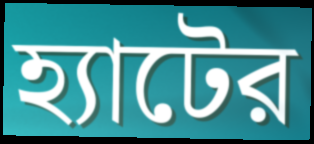
হ্যাটের